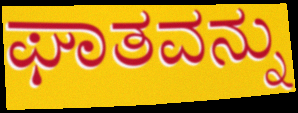
ಘಾತವನ್ನು